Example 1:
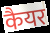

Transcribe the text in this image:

कैयर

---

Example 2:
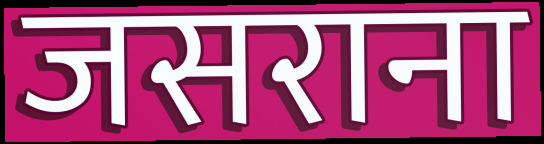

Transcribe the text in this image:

जसराना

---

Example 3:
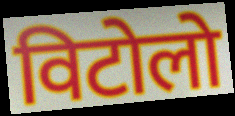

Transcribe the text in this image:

विटोलो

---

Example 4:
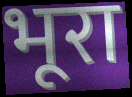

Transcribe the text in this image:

भूरा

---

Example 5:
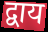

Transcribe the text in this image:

द्वाय